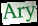
Ary